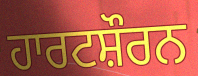
ਹਾਰਟਸ਼ੌਰਨ